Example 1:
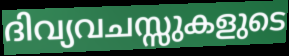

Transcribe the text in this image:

ദിവ്യവചസ്സുകളുടെ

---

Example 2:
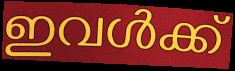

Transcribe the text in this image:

ഇവൾക്ക്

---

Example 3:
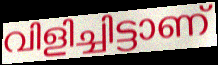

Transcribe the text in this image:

വിളിച്ചിട്ടാണ്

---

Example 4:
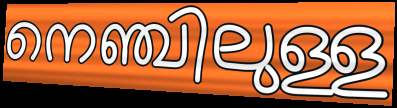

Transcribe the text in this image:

നെഞ്ചിലുള്ള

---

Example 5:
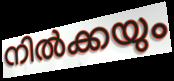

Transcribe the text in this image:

നിൽക്കയും